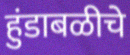
हुंडाबळीचे